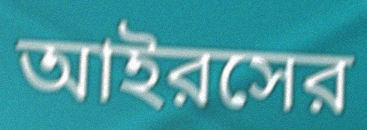
আইরসের